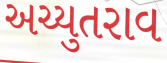
અચ્યુતરાવ